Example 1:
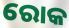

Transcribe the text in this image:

ରୋକ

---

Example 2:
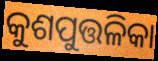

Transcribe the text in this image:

କୁଶପୁତ୍ତଳିକା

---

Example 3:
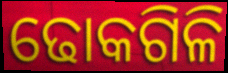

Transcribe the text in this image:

ଢୋକଗିଳି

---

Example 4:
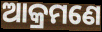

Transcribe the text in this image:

ଆକ୍ରମଣେ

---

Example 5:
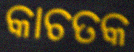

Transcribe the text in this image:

କାଚତକ